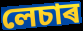
লেচাৰ